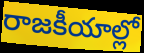
రాజకీయాల్లో